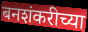
बनशंकरीच्या